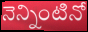
నెన్నింటినో